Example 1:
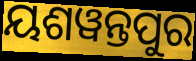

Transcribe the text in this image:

ୟଶୱନ୍ତପୁର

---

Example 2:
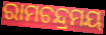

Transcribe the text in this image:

ରାମଚନ୍ଦ୍ରମୟ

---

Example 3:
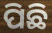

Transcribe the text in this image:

ପିଛି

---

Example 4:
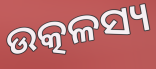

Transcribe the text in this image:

ଉତ୍କଳସ୍ୟ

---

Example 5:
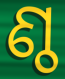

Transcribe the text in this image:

ଣ୍ଠ